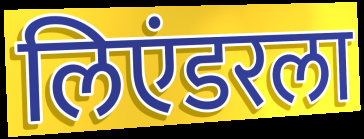
लिएंडरला